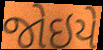
જોઇયે